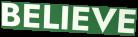
BELIEVE